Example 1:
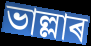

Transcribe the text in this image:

ভাল্লাৰ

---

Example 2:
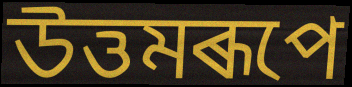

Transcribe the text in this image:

উত্তমৰূপে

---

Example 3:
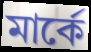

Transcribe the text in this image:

মাৰ্কে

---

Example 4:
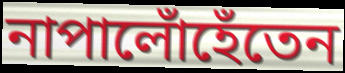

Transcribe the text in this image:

নাপালোঁহেঁতেন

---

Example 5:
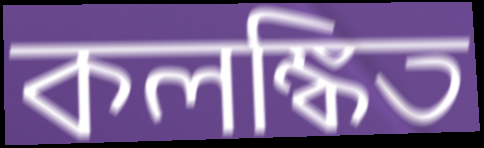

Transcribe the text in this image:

কলঙ্কিত